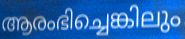
ആരംഭിച്ചെങ്കിലും